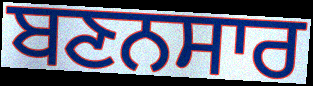
ਬਣਨਸਾਰ